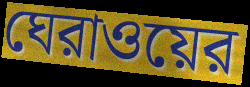
ঘেরাওয়ের